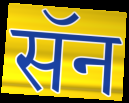
सॅन